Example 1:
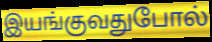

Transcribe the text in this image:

இயங்குவதுபோல்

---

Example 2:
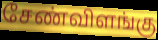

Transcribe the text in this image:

சேண்விளங்கு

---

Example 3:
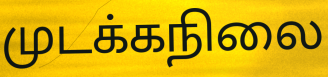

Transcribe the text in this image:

முடக்கநிலை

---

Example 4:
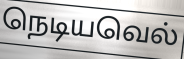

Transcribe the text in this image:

நெடியவெல்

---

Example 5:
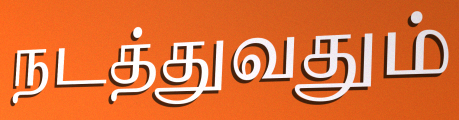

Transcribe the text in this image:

நடத்துவதும்